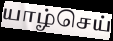
யாழ்செய்